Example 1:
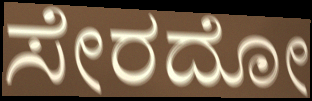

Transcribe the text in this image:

ಸೇರದೋ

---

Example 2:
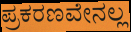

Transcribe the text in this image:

ಪ್ರಕರಣವೇನಲ್ಲ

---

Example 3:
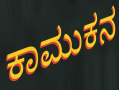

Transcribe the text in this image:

ಕಾಮುಕನ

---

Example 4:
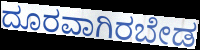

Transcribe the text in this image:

ದೂರವಾಗಿರಬೇಡ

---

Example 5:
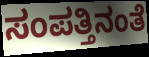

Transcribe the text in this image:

ಸಂಪತ್ತಿನಂತೆ